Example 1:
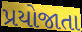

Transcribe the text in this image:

પ્રયોજાતા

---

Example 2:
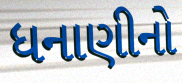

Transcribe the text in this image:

ધનાણીનો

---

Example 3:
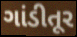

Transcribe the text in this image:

ગાંડીતૂર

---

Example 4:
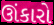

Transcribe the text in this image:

ઊંકારો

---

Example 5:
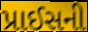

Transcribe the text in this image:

પ્રાઈસની